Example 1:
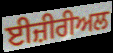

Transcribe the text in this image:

ਈਜ਼ੀਰੀਅਲ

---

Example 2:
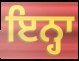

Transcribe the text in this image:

ਇਨ੍ਹਾ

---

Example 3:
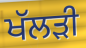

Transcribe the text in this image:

ਖੱਲੜੀ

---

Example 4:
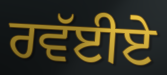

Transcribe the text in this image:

ਰਵੱਈਏ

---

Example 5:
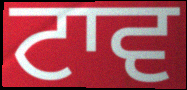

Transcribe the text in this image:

ਟਾਵ